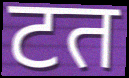
टत